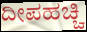
ದೀಪಹಚ್ಚಿ